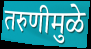
तरुणीमुळे